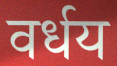
वर्धय